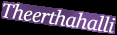
Theerthahalli